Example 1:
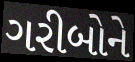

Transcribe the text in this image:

ગરીબોને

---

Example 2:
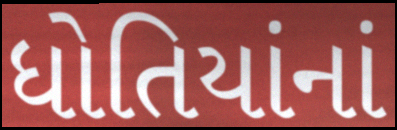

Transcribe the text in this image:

ધોતિયાંનાં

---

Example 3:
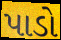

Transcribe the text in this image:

પાડો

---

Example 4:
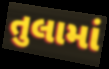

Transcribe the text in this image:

તુલામાં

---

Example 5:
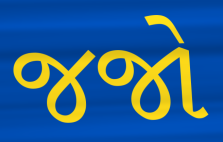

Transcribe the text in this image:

જજો